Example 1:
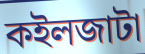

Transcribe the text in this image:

কইলজাটা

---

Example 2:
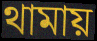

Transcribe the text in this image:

থামায়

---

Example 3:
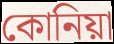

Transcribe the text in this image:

কোনিয়া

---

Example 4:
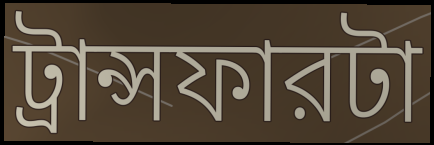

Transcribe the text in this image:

ট্রান্সফারটা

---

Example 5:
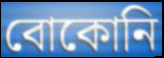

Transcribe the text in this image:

বোকোনি